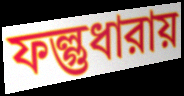
ফল্গুধারায়